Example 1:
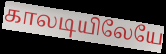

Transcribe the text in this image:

காலடியிலேயே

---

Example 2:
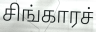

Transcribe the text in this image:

சிங்காரச்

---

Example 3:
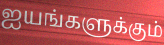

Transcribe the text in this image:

ஐயங்களுக்கும்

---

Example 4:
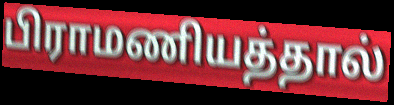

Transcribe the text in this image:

பிராமணியத்தால்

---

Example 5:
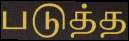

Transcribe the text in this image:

படுத்த